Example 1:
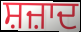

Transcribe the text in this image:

ਸ਼ਜ਼ਾਦ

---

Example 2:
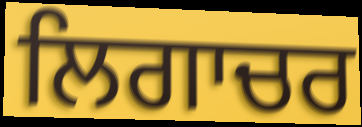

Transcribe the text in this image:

ਲਿਗਾਚਰ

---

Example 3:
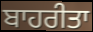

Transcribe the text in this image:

ਬਾਹਰੀਤਾ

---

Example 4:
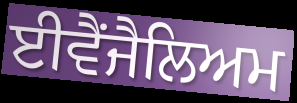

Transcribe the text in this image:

ਈਵੈਂਜੈਲਿਅਮ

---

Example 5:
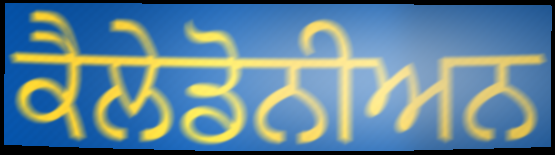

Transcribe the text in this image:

ਕੈਲੇਡੋਨੀਅਨ